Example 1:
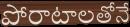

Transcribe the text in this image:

పోరాటాలతోనే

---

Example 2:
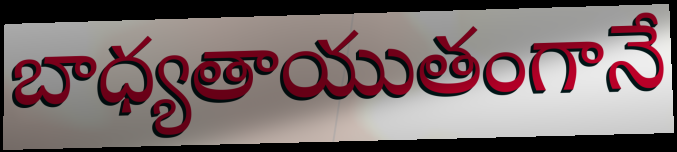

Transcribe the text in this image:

బాధ్యతాయుతంగానే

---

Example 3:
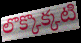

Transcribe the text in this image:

లొక్కొక్కటి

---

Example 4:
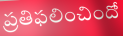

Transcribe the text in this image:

ప్రతిఫలించిందో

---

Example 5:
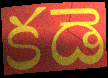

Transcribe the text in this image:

కడె